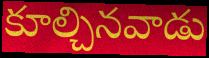
కూల్చినవాడు